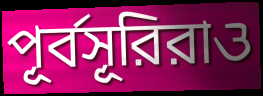
পূর্বসূরিরাও